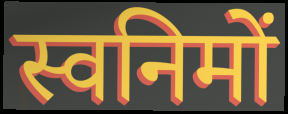
स्वनिमों